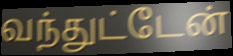
வந்துட்டேன்